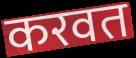
करवत